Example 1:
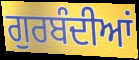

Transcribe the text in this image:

ਗੁਰਬੰਦੀਆਂ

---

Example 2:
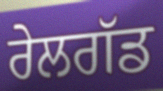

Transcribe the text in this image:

ਰੇਲਗੱਡ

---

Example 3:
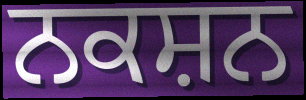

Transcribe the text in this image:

ਨਕਸ਼ਨ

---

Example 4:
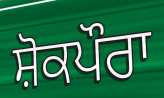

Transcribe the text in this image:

ਸ਼ੋਕਪੌਰਾ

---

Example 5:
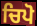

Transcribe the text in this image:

ਚਿਪੋ